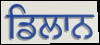
ਡਿਲਾਨ